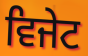
ਵਿਜੇਟ